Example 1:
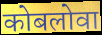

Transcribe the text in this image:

कोबलोवा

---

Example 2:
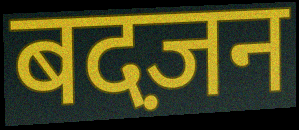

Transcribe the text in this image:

बदज़न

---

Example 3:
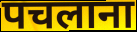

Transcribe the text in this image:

पचलाना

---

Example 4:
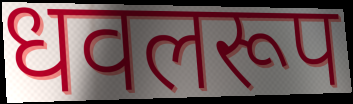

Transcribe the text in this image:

धवलरूप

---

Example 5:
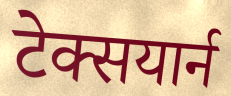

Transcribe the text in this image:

टेक्सयार्न